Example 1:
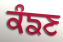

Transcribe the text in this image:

ਕੰਙਣ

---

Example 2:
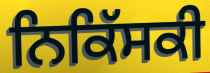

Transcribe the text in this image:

ਨਿਕਿੱਸਕੀ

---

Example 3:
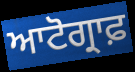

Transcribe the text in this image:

ਆਟੋਗ੍ਰਾਫ਼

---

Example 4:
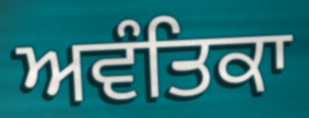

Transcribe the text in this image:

ਅਵੰਤਿਕਾ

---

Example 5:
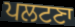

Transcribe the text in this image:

ਪਲਟਣਾ